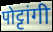
पोट्टांगी